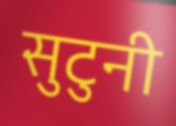
सुटुनी